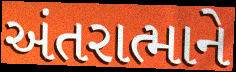
અંતરાત્માને